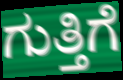
ಗುತ್ತಿಗೆ